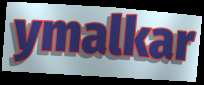
ymalkar